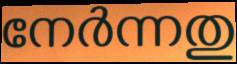
നേർന്നതു